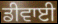
ਡੀਵਾਈ